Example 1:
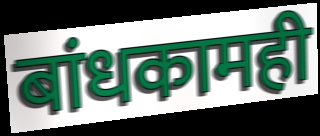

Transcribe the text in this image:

बांधकामही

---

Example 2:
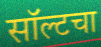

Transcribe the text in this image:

सॉल्टचा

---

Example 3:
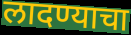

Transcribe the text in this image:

लादण्याचा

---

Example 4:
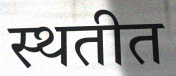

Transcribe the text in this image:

स्थतीत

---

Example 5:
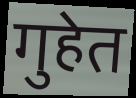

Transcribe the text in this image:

गुहेत